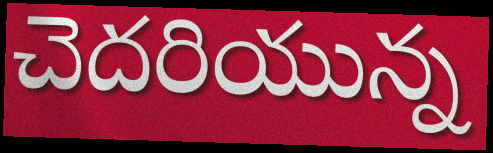
చెదరియున్న